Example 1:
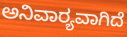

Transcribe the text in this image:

ಅನಿವಾರ‍್ಯವಾಗಿದೆ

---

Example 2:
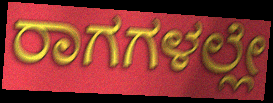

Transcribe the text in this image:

ರಾಗಗಳಲ್ಲೇ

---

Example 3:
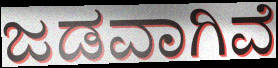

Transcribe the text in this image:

ಜಡವಾಗಿವೆ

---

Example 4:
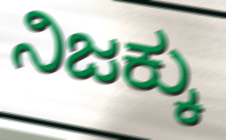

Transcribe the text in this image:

ನಿಜಕ್ಕು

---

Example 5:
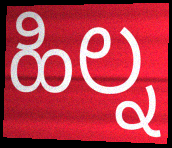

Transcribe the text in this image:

ಹಿಲ್ನ